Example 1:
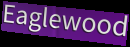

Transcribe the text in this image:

Eaglewood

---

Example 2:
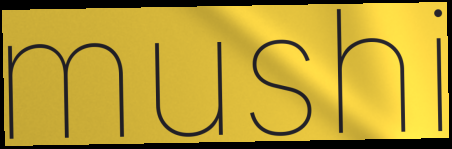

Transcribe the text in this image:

mushi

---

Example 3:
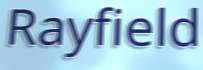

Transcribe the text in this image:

Rayfield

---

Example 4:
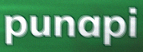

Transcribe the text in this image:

punapi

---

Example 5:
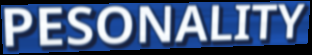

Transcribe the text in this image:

PESONALITY